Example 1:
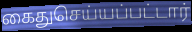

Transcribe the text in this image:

கைதுசெய்யப்பட்டார்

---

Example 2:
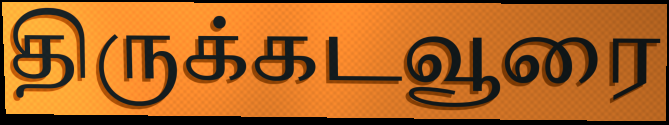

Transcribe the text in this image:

திருக்கடவூரை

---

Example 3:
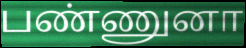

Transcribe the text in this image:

பண்ணுனா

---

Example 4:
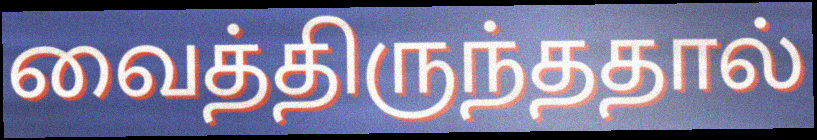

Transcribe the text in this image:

வைத்திருந்ததால்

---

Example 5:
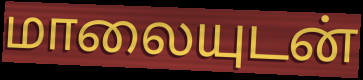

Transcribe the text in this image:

மாலையுடன்